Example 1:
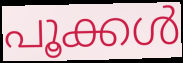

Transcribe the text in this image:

പൂക്കൾ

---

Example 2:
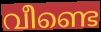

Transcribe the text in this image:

വീണ്ടെ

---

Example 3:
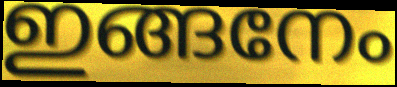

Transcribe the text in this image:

ഇങ്ങനേം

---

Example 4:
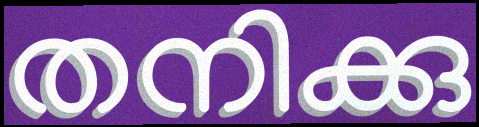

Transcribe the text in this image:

തനിക്കു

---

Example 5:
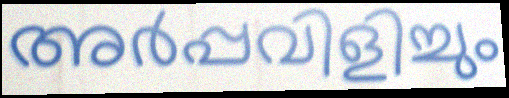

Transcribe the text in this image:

അർപ്പവിളിച്ചും